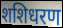
शशिधरण